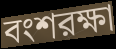
বংশরক্ষা